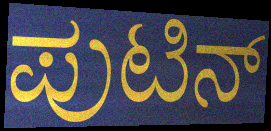
ಪುಟಿನ್